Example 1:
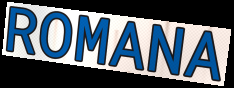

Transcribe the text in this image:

ROMANA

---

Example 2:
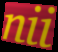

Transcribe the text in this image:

nii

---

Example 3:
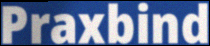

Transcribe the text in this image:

Praxbind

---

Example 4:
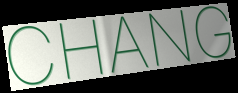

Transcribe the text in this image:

CHANG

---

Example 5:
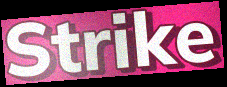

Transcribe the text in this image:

Strike